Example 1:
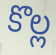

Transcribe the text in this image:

కొల్ల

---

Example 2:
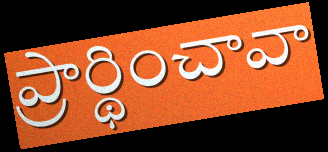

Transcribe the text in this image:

ప్రార్థించావా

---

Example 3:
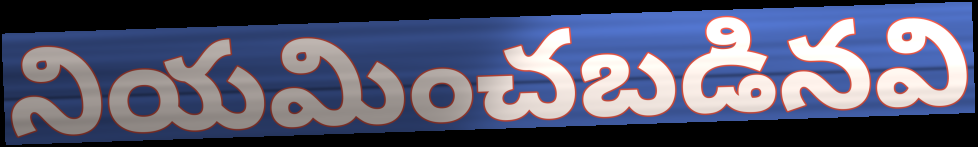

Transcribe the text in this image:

నియమించబడినవి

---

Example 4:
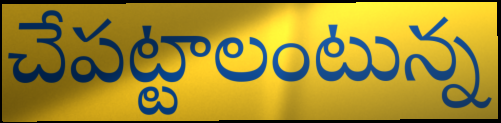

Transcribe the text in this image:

చేపట్టాలంటున్న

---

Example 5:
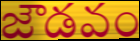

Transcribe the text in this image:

జౌడవం